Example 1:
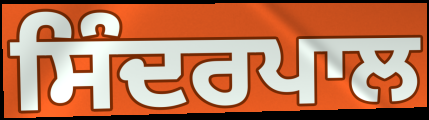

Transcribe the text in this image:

ਸਿੰਦਰਪਾਲ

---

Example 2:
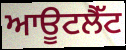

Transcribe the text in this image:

ਆਊਟਲੈੱਟ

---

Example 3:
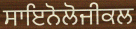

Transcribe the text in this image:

ਸਾਇਨੋਲੋਜੀਕਲ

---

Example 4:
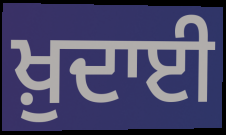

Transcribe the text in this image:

ਖ਼ੁਦਾਈ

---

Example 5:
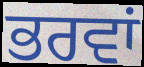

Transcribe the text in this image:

ਭਰਵਾਂ